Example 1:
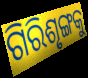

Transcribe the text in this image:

ଗିରିଶୃଙ୍ଗକୁ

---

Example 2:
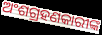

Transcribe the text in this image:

ଅଂଶଗ୍ରହଣକାରୀଙ୍କ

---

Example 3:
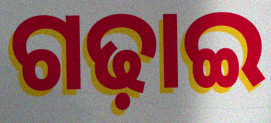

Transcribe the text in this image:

ଗଢ଼ାଇ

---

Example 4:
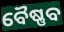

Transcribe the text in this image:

ବୈଷ୍ଣବ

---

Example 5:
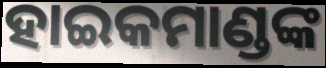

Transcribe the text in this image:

ହାଇକମାଣ୍ଡଙ୍କ